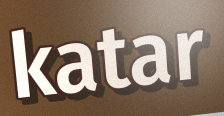
katar